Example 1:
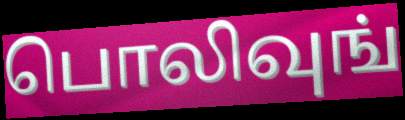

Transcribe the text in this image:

பொலிவுங்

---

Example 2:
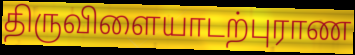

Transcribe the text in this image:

திருவிளையாடற்புராண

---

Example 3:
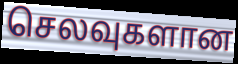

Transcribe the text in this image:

செலவுகளான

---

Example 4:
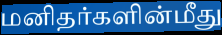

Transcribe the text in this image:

மனிதர்களின்மீது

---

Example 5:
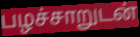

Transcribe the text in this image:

பழச்சாறுடன்